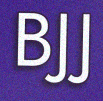
BJJ